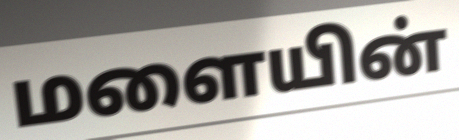
மளையின்